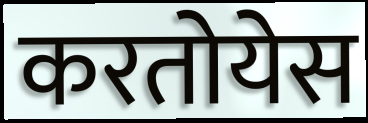
करतोयेस